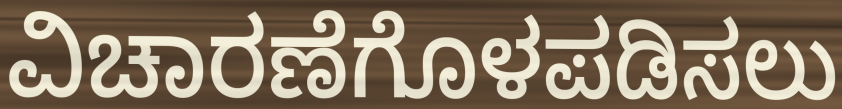
ವಿಚಾರಣೆಗೊಳಪಡಿಸಲು